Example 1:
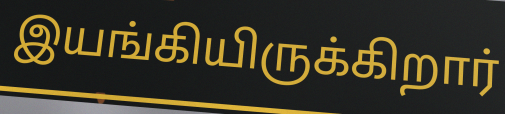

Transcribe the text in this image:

இயங்கியிருக்கிறார்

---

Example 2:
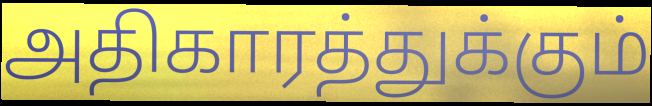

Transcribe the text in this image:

அதிகாரத்துக்கும்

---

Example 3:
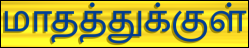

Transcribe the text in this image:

மாதத்துக்குள்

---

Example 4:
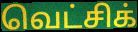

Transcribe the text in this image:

வெட்சிக்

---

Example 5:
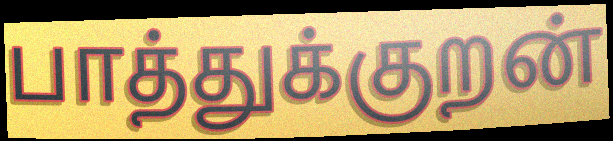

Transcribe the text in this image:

பாத்துக்குறன்